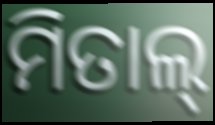
ମିତାଲ୍